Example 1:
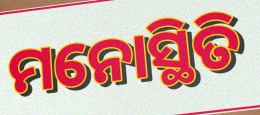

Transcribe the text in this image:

ମନୋସ୍ଥିତି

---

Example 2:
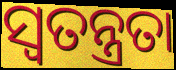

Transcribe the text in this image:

ସ୍ବତନ୍ତ୍ରତା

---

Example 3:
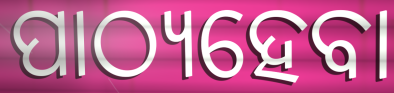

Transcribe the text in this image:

ପାଠ୍ୟହେବା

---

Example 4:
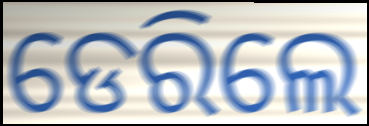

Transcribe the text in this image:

ଡେରିଲେ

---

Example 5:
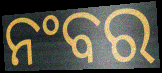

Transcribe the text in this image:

ନଂବର